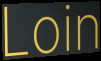
Loin